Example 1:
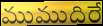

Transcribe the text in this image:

ముముదిరే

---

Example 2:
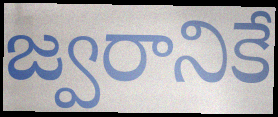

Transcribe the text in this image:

జ్వరానికే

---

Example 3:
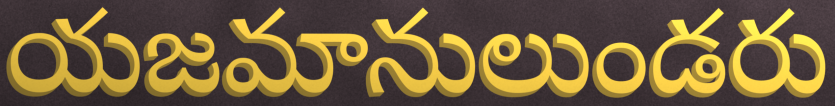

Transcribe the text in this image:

యజమానులుండరు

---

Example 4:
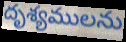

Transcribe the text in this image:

దృశ్యములను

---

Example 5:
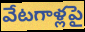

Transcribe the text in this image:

వేటగాళ్లపై